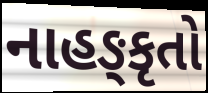
નાહઙ્કૃતો